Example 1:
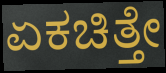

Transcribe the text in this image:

ಏಕಚಿತ್ತೇ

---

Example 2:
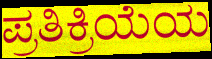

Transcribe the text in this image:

ಪ್ರತಿಕ್ರಿಯೆಯ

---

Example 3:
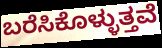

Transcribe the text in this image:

ಬರೆಸಿಕೊಳ್ಳುತ್ತವೆ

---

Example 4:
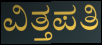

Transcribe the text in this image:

ವಿತ್ತಪತಿ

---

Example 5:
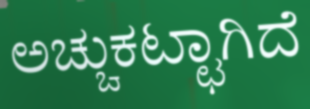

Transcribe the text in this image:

ಅಚ್ಚುಕಟ್ಟಾಗಿದೆ